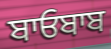
ਬਾਓਬਾਬ